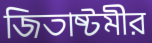
জিতাষ্টমীর